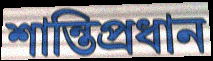
শান্তিপ্রধান